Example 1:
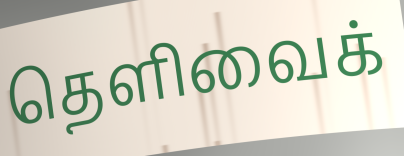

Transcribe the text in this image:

தெளிவைக்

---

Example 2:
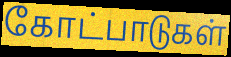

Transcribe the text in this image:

கோட்பாடுகள்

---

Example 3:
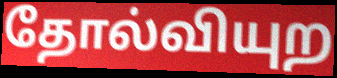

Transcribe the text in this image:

தோல்வியுற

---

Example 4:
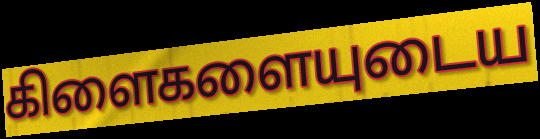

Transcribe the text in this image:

கிளைகளையுடைய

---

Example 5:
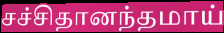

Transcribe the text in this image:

சச்சிதானந்தமாய்